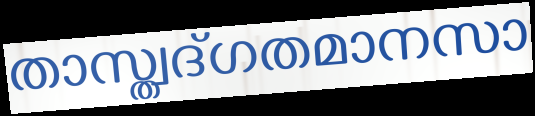
താസ്ത്വദ്ഗതമാനസാ